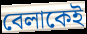
বেলাকেই